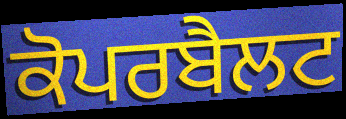
ਕੋਪਰਬੈਲਟ